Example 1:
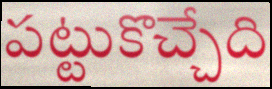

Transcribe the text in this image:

పట్టుకొచ్చేది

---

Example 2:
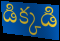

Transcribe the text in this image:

డిక్కడి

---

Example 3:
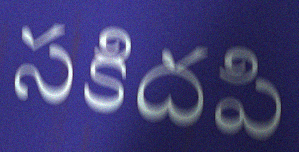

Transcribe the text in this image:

సకిదపి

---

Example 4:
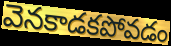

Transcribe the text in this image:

వెనకాడకపోవడం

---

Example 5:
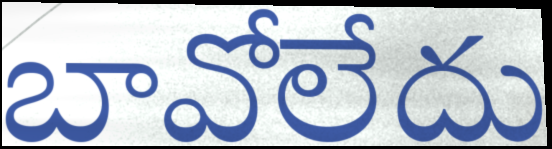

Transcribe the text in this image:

బావోలేదు